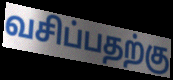
வசிப்பதற்கு